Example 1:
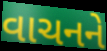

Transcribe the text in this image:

વાચનને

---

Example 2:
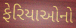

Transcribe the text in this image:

ફેરિયાઓનો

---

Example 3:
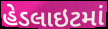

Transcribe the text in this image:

હેડલાઇટમાં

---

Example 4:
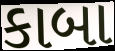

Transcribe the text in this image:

કાબા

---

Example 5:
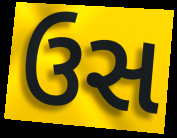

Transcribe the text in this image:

ઉસ